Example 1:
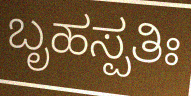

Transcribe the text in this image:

ಬೃಹಸ್ಪತಿಃ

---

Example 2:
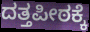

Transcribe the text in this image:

ದತ್ತಪೀಠಕ್ಕೆ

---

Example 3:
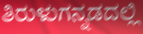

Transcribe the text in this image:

ತಿರುಳುಗನ್ನಡದಲ್ಲಿ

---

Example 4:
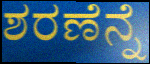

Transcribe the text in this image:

ಶರಣೆನ್ನೆ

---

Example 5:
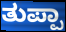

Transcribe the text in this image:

ತುಪ್ಪಾ